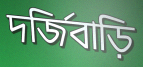
দর্জিবাড়ি